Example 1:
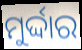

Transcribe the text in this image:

ମୁର୍ଦ୍ଦାର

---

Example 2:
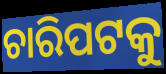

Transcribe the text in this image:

ଚାରିପଟକୁ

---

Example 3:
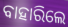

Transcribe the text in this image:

ବାହାରିଲେ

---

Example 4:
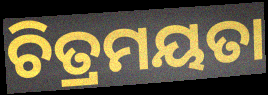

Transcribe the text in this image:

ଚିତ୍ରମୟତା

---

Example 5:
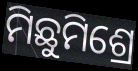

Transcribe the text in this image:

ମିଛୁମିଶ୍ରେ